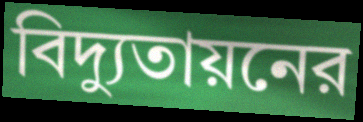
বিদ্যুতায়নের